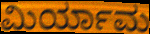
ಮಿರ್ಯಾಮ